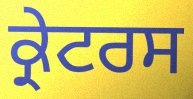
ਕ੍ਰੇਟਰਸ